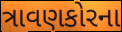
ત્રાવણકોરના